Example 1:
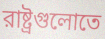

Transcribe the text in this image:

রাষ্ট্রগুলোতে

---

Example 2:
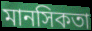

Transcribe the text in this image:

মানসিকতা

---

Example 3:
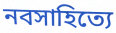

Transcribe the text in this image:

নবসাহিত্যে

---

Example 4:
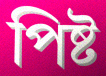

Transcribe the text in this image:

পিষ্ট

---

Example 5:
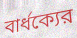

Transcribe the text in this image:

বার্ধক্যের